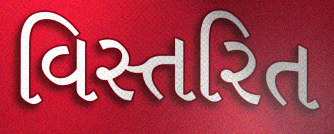
વિસ્તરિત